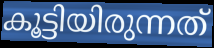
കൂട്ടിയിരുന്നത്